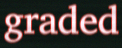
graded